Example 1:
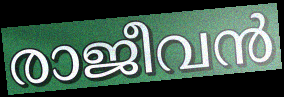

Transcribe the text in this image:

രാജീവൻ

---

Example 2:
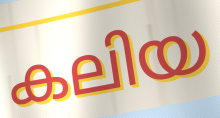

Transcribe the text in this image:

കലിയ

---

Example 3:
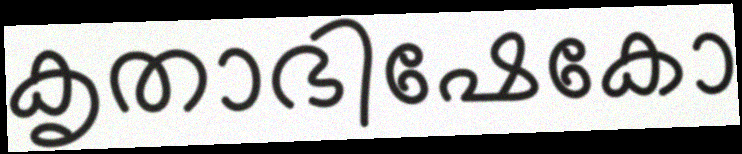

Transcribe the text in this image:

കൃതാഭിഷേകോ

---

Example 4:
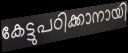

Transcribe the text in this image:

കേട്ടുപഠിക്കാനായി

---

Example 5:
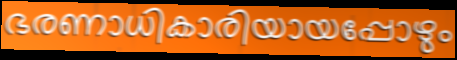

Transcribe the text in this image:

ഭരണാധികാരിയായപ്പോഴും